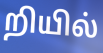
றியில்